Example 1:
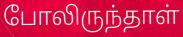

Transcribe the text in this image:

போலிருந்தாள்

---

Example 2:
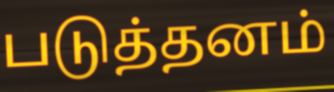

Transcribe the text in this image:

படுத்தனம்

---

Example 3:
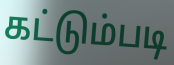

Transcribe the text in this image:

கட்டும்படி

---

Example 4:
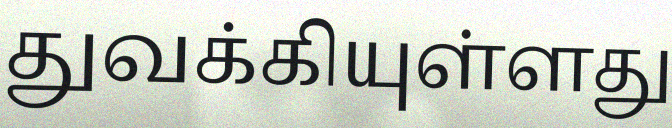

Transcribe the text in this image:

துவக்கியுள்ளது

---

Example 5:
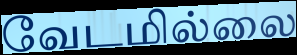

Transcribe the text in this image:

வேடமில்லை